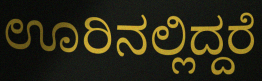
ಊರಿನಲ್ಲಿದ್ದರೆ